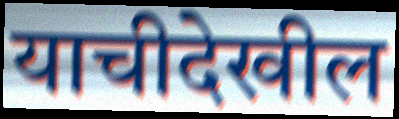
याचीदेखील